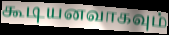
கூடியனவாகவும்